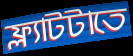
ফ্ল্যাটটাতে